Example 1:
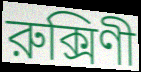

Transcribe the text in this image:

রুক্সিণী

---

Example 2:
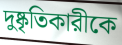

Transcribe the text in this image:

দুষ্কৃতিকারীকে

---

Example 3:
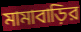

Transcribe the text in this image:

মামাবাড়ির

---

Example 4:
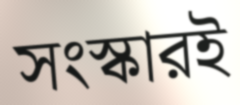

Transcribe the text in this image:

সংস্কারই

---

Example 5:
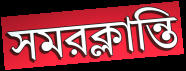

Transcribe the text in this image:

সমরক্লান্তি